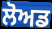
ਲੋਅਡ